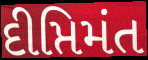
દીપ્તિમંત